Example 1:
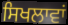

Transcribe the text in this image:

ਸਿਖਲਾਵਾਂ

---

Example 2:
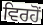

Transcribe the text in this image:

ਵਿਰਹੋਂ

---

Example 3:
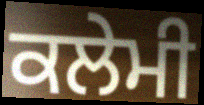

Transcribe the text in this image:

ਕਲੇਮੀ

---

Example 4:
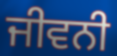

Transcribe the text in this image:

ਜੀਵਨੀ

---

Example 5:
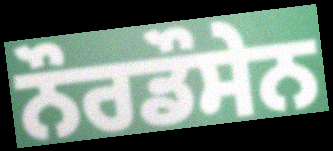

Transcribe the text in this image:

ਨੌਰਡੌਸੇਨ